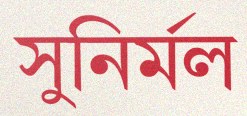
সুনির্মল